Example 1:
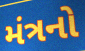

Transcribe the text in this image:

મંત્રનો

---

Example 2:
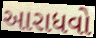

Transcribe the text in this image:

આરાધવો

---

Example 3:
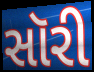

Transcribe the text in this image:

સૉરી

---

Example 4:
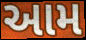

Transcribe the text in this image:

આમ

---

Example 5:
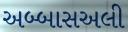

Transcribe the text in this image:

અબ્બાસઅલી